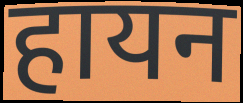
हायन